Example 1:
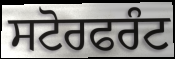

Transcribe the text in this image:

ਸਟੋਰਫਰੰਟ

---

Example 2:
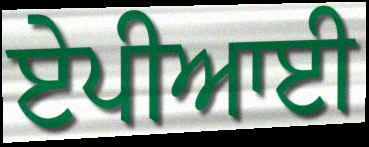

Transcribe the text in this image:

ਏਪੀਆਈ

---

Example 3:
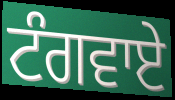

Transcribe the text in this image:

ਟੰਗਵਾਏ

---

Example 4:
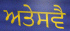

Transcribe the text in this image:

ਅਤੇਸਵੈ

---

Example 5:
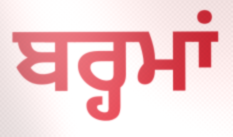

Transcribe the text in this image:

ਬਰ੍ਹਮਾਂ